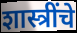
शास्त्रींचे